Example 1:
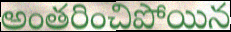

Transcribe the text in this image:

అంతరించిపోయిన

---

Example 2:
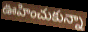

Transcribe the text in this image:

ఊహించుకున్నా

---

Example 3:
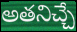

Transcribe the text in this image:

అతనిచ్చే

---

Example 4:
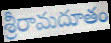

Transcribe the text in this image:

శ్రీరామదూతం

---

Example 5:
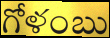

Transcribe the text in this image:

గోళంబు